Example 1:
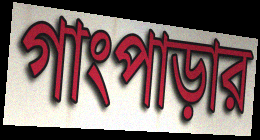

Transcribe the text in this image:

গাংপাড়ার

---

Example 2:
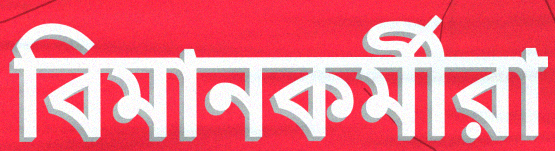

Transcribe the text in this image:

বিমানকর্মীরা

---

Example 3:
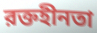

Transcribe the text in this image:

রক্তহীনতা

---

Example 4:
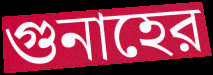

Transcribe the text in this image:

গুনাহের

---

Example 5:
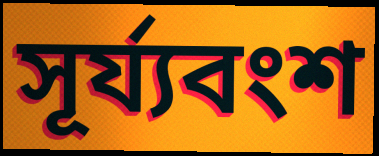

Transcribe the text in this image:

সূর্য্যবংশ